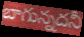
బాగున్నదనీ